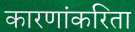
कारणांकरिता